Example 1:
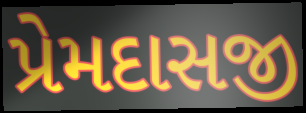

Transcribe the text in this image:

પ્રેમદાસજી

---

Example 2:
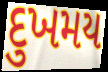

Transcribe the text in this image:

દુખમય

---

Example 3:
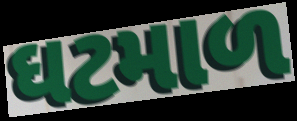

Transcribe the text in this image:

ઘટમાળ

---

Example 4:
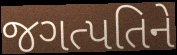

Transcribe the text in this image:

જગત્પતિને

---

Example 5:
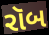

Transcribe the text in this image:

રૉબ